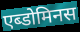
एब्डोमिनस